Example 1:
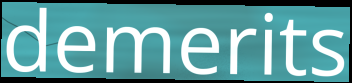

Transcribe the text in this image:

demerits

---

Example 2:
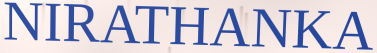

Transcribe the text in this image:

NIRATHANKA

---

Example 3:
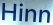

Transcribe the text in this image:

Hinn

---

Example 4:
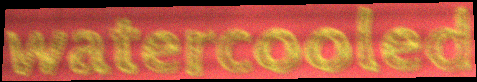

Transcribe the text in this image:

watercooled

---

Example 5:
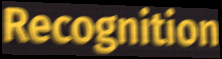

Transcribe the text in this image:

Recognition